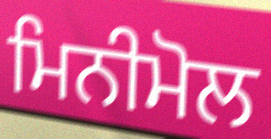
ਮਿਨੀਮੋਲ